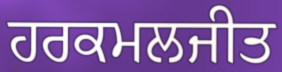
ਹਰਕਮਲਜੀਤ